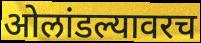
ओलांडल्यावरच